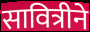
सावित्रीने